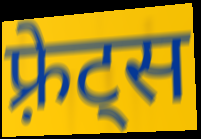
फ़्रेट्स